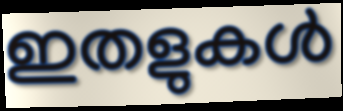
ഇതളുകൾ